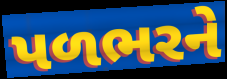
પળભરને